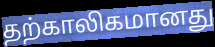
தற்காலிகமானது